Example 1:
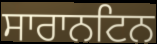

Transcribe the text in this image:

ਸਾਰਾਨਟਿਨ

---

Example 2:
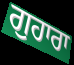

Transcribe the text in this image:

ਗੁਹਾਰਾ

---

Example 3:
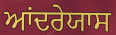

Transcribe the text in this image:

ਆਂਦਰੇਯਾਸ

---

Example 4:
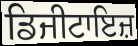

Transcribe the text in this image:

ਡਿਜੀਟਾਇਜ਼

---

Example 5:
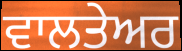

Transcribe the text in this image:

ਵਾਲਤੇਅਰ